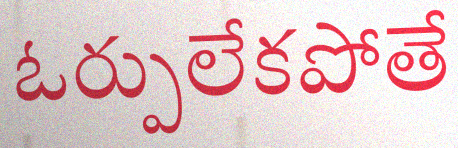
ఓర్పులేకపోతే